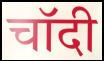
चॉदी